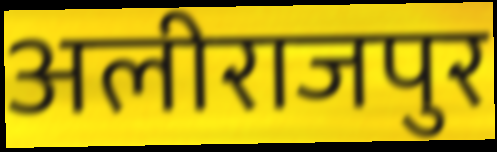
अलीराजपुर